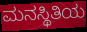
ಮನಸ್ಥಿತಿಯ